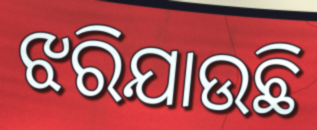
ଝରିଯାଉଛି